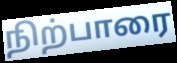
நிற்பாரை